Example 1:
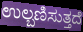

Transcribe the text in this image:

ಉಲ್ಬಣಿಸುತ್ತದೆ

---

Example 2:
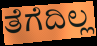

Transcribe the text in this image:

ತೆಗೆದಿಲ್ಲ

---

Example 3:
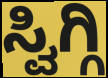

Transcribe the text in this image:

ಸ್ವಿಗ್ಗಿ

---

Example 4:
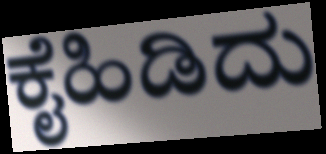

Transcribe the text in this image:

ಕೈಹಿಡಿದು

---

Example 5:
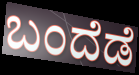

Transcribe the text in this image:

ಬಂದೆಡೆ